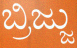
ಬ್ರಿಜ್ಜು